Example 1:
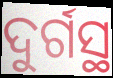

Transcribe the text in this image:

ଦୁର୍ଗସ୍ଥ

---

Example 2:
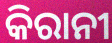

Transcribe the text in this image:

କିରାନୀ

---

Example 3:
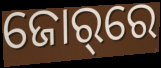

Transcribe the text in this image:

ଜୋର୍‌ରେ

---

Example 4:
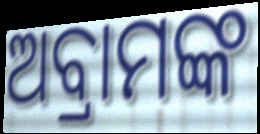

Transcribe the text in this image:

ଅବ୍ରାମଙ୍କ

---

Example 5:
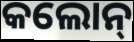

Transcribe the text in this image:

କଲୋନ୍